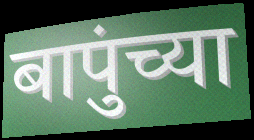
बापुंच्या